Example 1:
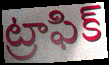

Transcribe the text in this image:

ట్రాఫిక్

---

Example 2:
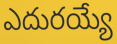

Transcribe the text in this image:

ఎదురయ్యే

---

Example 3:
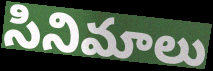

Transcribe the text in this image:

సినిమాలు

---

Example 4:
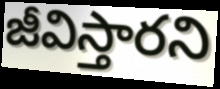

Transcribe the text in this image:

జీవిస్తారని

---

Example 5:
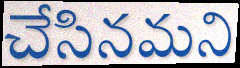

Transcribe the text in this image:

చేసినమని